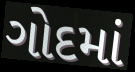
ગોદમાં